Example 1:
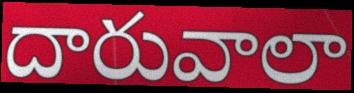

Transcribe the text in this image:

దారువాలా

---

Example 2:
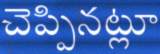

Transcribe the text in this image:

చెప్పినట్లూ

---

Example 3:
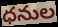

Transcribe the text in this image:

ధనుల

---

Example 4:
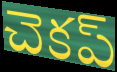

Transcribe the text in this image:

చెకప్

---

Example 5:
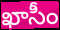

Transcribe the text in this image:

ఖాసీం